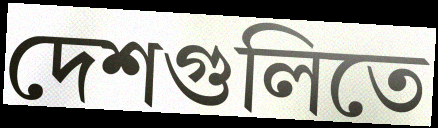
দেশগুলিতে